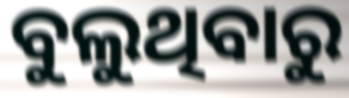
ବୁଲୁଥିବାରୁ